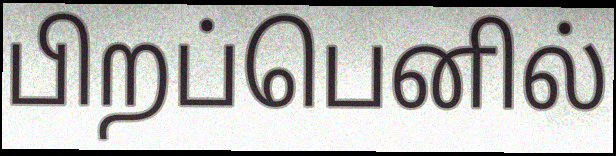
பிறப்பெனில்